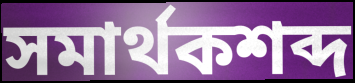
সমার্থকশব্দ